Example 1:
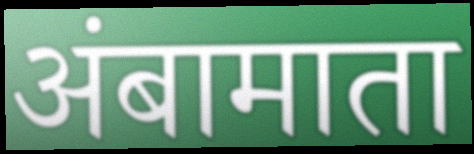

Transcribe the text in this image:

अंबामाता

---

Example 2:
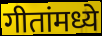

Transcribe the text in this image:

गीतांमध्ये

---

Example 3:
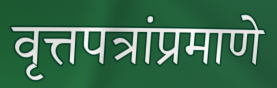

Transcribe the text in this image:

वृत्तपत्रांप्रमाणे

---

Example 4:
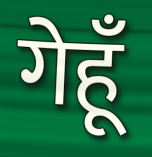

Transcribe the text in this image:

गेहूँ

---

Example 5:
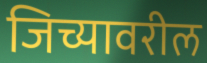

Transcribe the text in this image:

जिच्यावरील